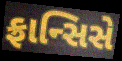
ફ્રાન્સિસે